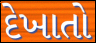
દેખાતો